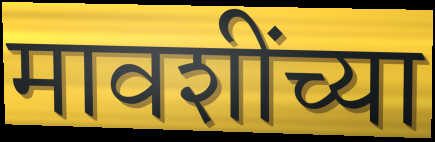
मावशींच्या